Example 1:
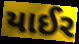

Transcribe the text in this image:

યાઈર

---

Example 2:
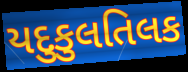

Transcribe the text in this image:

યદુકુલતિલક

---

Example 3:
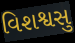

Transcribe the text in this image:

વિશશ્વસુ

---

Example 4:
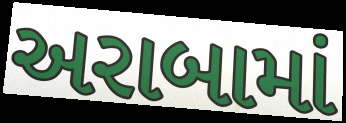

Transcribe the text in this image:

અરાબામાં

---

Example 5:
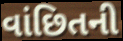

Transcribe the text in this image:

વાંછિતની